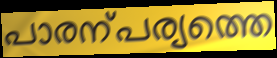
പാരന്പര്യത്തെ